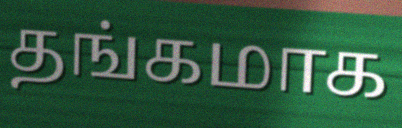
தங்கமாக